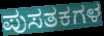
ಪುಸತಕಗಳ